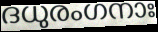
ദധുരംഗനാഃ